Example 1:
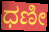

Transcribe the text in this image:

ಧಣೀ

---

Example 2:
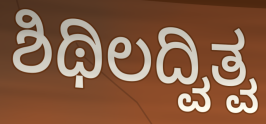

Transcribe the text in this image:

ಶಿಥಿಲದ್ವಿತ್ವ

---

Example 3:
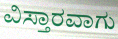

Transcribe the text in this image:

ವಿಸ್ತಾರವಾಗು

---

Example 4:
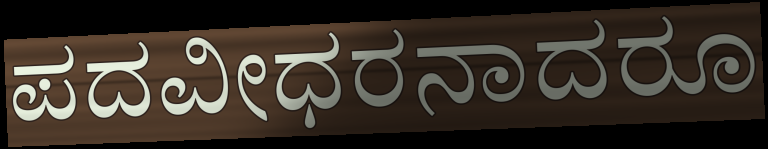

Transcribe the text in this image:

ಪದವೀಧರನಾದರೂ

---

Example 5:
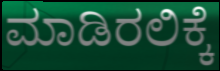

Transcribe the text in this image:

ಮಾಡಿರಲಿಕ್ಕೆ